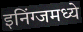
इनिंग्जमध्ये